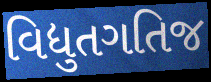
વિદ્યુતગતિજ